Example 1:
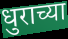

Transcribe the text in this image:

धुराच्या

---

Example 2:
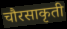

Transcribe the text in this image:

चौरसाकृती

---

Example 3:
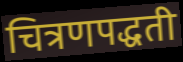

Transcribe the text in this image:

चित्रणपद्धती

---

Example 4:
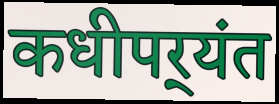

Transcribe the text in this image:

कधीपर्यंत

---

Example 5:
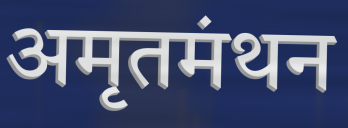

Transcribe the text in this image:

अमृतमंथन